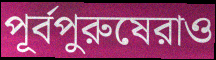
পূর্বপুরুষেরাও